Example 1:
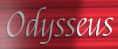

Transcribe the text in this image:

Odysseus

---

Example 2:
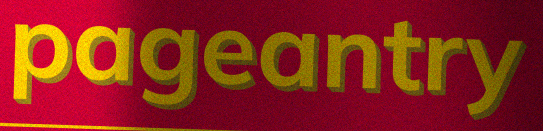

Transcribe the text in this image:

pageantry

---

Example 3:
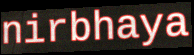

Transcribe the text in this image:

nirbhaya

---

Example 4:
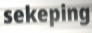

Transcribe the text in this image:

sekeping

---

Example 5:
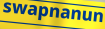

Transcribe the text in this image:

swapnanun